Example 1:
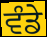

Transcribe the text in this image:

ਵੰਡੇ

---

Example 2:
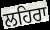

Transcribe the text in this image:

ਲਹਿਰਾ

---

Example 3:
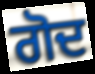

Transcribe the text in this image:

ਗੋਦ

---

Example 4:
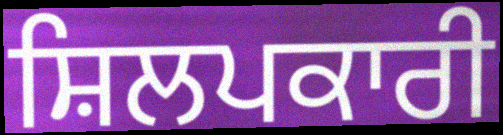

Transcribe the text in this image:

ਸ਼ਿਲਪਕਾਰੀ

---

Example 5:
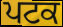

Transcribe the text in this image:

ਪਟਕ